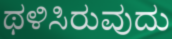
ಥಳಿಸಿರುವುದು